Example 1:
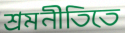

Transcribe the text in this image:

শ্রমনীতিতে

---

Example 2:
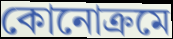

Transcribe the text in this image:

কোনোক্রমে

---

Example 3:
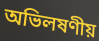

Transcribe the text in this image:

অভিলষণীয়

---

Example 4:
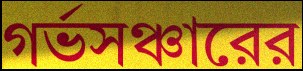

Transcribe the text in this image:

গর্ভসঞ্চারের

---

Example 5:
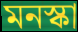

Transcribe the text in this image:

মনস্কা